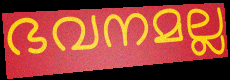
ഭവനമല്ല